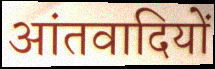
आंतवादियों